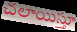
చలాయిస్తూ